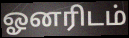
ஓனரிடம்